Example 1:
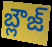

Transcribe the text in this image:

బ్లౌజ్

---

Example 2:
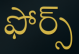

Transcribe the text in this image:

ఫోర్స్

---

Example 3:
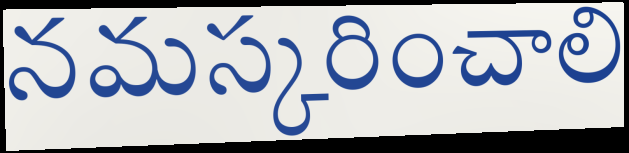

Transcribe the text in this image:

నమస్కరించాలి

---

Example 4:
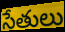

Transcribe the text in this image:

సేతులు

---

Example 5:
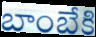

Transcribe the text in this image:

బాంబేకి